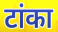
टांका